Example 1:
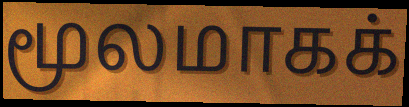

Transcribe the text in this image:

மூலமாகக்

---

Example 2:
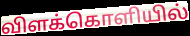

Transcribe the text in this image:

விளக்கொளியில்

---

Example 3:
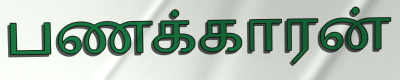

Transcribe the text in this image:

பணக்காரன்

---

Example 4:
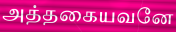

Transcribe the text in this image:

அத்தகையவனே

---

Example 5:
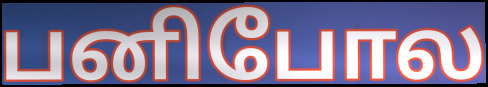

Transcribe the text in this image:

பனிபோல